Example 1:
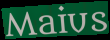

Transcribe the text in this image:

Maius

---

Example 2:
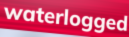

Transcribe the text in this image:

waterlogged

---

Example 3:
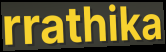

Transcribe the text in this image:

rrathika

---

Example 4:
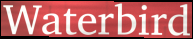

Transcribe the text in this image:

Waterbird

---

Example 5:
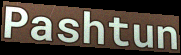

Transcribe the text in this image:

Pashtun